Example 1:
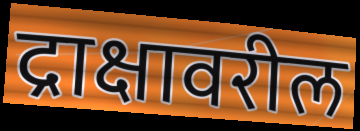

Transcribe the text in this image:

द्राक्षावरील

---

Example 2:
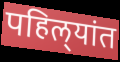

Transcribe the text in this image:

पहिल्यांत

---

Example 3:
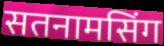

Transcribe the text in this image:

सतनामसिंग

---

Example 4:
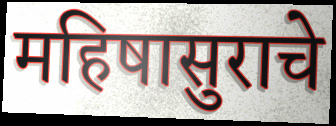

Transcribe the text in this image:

महिषासुराचे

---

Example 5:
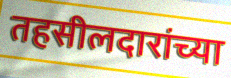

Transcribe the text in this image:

तहसीलदारांच्या